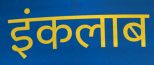
इंकलाब